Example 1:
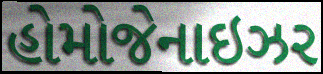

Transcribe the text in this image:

હોમોજેનાઇઝર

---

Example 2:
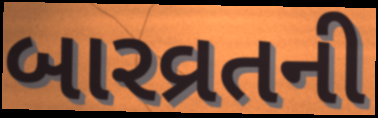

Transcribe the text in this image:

બારવ્રતની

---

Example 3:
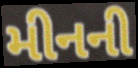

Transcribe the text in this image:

મીનની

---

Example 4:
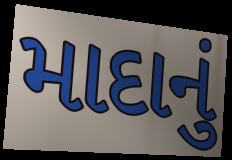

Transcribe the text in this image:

માદાનું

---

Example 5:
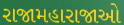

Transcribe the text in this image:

રાજામહારાજાઓ